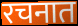
रचनात